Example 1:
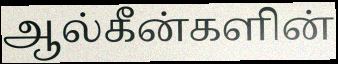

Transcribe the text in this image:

ஆல்கீன்களின்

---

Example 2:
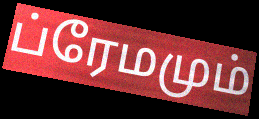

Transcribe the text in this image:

ப்ரேமமும்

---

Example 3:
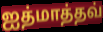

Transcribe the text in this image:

ஐத்மாத்தவ்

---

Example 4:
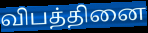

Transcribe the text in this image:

விபத்தினை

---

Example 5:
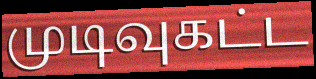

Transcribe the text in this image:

முடிவுகட்ட